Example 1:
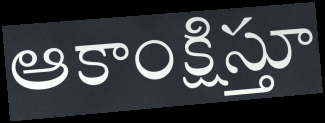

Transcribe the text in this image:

ఆకాంక్షిస్తూ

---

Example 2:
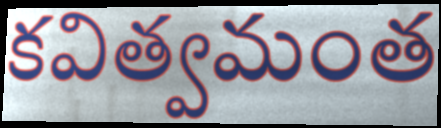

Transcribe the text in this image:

కవిత్వమంత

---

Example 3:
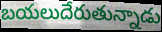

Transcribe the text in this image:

బయలుదేరుతున్నాడు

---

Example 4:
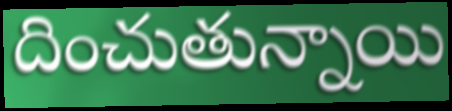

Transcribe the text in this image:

దించుతున్నాయి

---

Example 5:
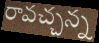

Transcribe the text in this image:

రావచ్చన్న